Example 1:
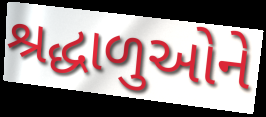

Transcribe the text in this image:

શ્રદ્ધાળુઓને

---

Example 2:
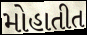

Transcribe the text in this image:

મોહાતીત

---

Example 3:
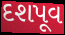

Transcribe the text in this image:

દશપૂવ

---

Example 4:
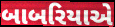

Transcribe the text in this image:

બાબરિયાએ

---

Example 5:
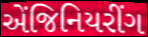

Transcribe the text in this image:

એંજિનિયરીંગ